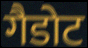
गैडोट